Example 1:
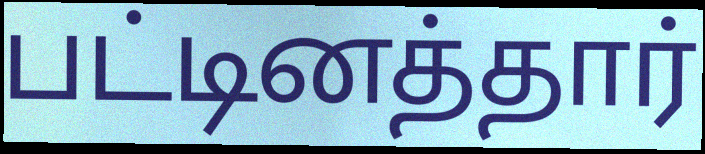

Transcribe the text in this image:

பட்டினத்தார்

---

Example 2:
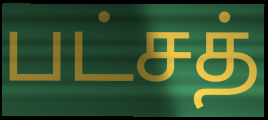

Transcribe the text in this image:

பட்சத்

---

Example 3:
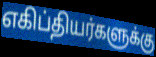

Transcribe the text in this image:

எகிப்தியர்களுக்கு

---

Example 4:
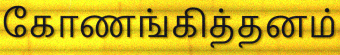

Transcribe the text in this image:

கோணங்கித்தனம்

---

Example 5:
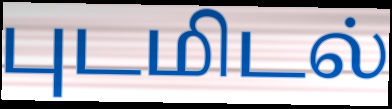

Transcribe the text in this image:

புடமிடல்